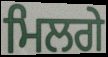
ਮਿਲਗੇ